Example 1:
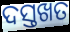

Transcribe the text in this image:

ଦସ୍ତଖତ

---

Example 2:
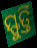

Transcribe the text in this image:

ସ୍ଫୁର୍ତ୍ତି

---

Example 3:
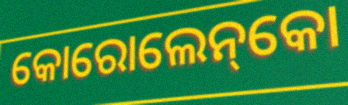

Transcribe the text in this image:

କୋରୋଲେନ୍‌କୋ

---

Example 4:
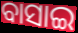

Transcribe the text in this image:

ବାସାଇ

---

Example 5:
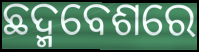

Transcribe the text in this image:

ଛଦ୍ମବେଶରେ